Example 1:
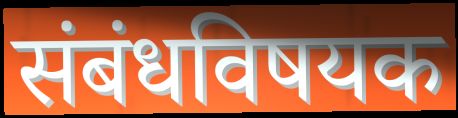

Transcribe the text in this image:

संबंधविषयक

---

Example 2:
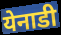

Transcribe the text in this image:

येनाडी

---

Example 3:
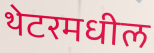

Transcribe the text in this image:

थेटरमधील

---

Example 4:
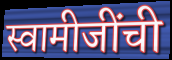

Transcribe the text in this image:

स्वामीजींची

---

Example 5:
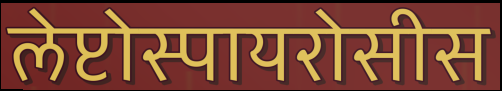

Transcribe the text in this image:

लेप्टोस्पायरोसीस